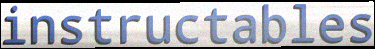
instructables